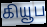
கியூப